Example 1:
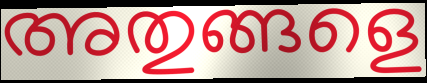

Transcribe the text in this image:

അതുങ്ങളെ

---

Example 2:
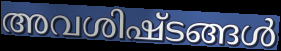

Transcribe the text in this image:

അവശിഷ്ടങ്ങൾ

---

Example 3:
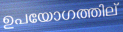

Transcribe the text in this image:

ഉപയോഗത്തില്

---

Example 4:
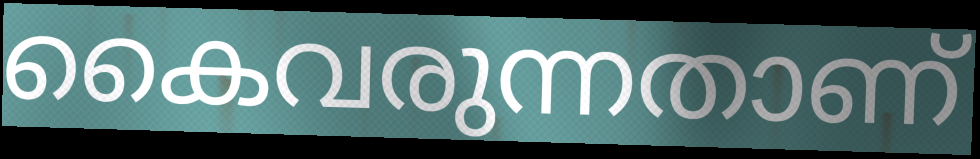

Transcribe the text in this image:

കൈവരുന്നതാണ്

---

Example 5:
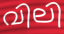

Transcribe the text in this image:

വിലി